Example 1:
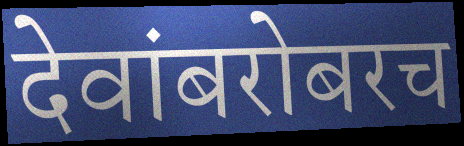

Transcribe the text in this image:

देवांबरोबरच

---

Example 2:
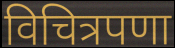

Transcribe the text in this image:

विचित्रपणा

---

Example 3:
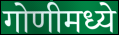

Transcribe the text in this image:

गोणीमध्ये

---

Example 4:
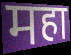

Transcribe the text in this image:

महा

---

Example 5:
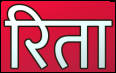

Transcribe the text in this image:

रिता